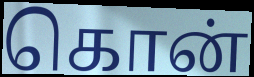
கொன்